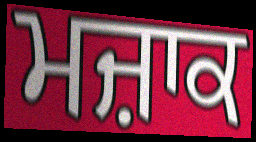
ਮਜ਼ਾਕ